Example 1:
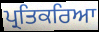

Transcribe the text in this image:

ਪ੍ਰਤਿਕਰਿਆ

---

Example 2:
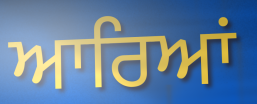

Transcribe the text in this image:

ਆਰਿਆਂ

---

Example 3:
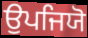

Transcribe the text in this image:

ਉਪਜਿਯੋ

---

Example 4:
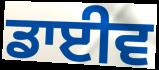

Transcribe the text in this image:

ਡਾਈਵ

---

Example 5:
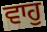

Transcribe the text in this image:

ਵਾਹੁ